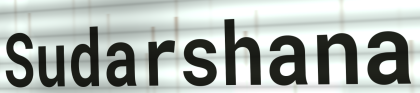
Sudarshana